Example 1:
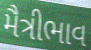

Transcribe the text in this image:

મૈત્રીભાવ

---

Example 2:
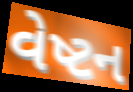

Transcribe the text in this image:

વેષ્ટન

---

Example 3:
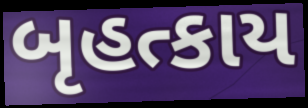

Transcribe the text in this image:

બૃહત્કાય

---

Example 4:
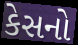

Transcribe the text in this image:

કેસનો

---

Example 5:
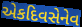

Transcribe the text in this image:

એકદિવસેનેવ